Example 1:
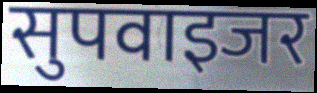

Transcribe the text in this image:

सुपवाइजर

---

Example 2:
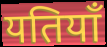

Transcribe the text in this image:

यतियाँ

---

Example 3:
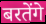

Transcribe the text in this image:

बरतेंगे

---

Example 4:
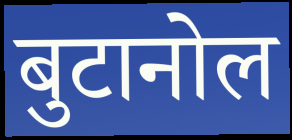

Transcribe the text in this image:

बुटानोल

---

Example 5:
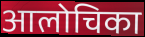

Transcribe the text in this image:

आलोचिका